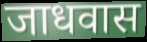
जाधवास